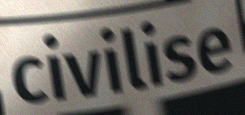
civilise